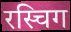
रस्चिग